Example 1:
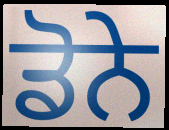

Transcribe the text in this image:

ਡੋਨੇ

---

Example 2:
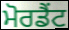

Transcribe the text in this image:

ਮੋਰਡੈਂਟ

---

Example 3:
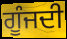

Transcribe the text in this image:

ਗੂੰਜਦੀ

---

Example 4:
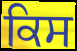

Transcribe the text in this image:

ਕਿਸ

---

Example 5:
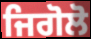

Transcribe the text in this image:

ਜਿਗੋਲੋ